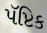
પૅપ્ટિક